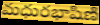
మధురభాషిణి